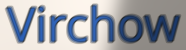
Virchow